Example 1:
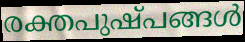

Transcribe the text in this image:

രക്തപുഷ്പങ്ങൾ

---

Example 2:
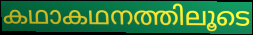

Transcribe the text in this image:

കഥാകഥനത്തിലൂടെ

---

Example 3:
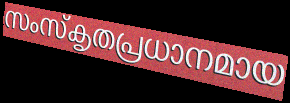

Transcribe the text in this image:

സംസ്‌കൃതപ്രധാനമായ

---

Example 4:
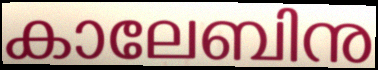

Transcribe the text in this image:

കാലേബിനു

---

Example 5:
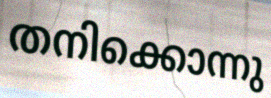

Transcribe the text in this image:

തനിക്കൊന്നു